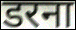
डरना